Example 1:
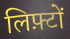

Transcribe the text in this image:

लिफ़्टों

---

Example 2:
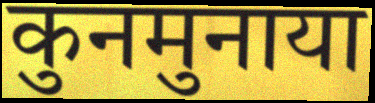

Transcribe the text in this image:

कुनमुनाया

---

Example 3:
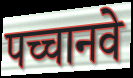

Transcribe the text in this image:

पच्चानवे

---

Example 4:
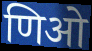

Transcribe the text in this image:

णिओ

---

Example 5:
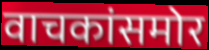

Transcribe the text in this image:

वाचकांसमोर